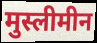
मुस्लीमीन